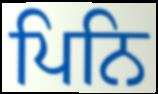
ਪਿਨਿ